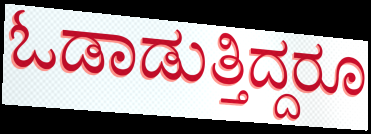
ಓಡಾಡುತ್ತಿದ್ದರೂ